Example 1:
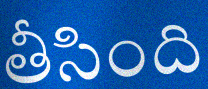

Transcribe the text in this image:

తీసింది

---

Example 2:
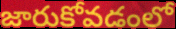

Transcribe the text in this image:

జారుకోవడంలో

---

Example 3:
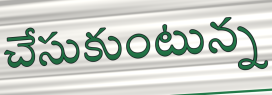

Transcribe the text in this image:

చేసుకుంటున్న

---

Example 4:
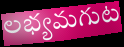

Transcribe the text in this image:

లభ్యమగుట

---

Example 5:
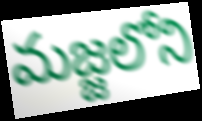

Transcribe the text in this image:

మజ్జలోని